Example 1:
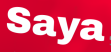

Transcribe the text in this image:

Saya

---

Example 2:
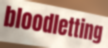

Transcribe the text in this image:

bloodletting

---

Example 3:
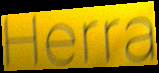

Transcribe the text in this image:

Herra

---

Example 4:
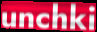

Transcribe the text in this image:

unchki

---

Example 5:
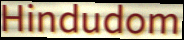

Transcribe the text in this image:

Hindudom